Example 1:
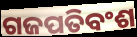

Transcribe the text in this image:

ଗଜପତିବଂଶ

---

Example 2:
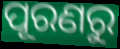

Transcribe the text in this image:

ପୂରଣରୁ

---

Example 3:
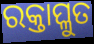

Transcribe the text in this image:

ରକ୍ତାପ୍ଳୁତ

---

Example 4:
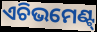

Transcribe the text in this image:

ଏଚିଭମେଣ୍ଟ୍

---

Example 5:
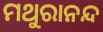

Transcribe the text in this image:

ମଥୁରାନନ୍ଦ